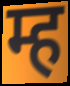
म्ह